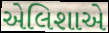
એલિશાએ